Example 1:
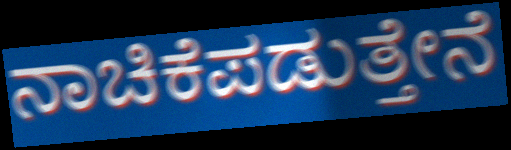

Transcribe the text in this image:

ನಾಚಿಕೆಪಡುತ್ತೇನೆ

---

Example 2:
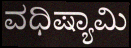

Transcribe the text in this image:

ವಧಿಷ್ಯಾಮಿ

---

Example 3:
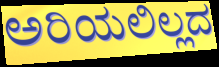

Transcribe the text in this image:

ಅರಿಯಲಿಲ್ಲದ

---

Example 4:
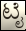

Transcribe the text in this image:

ಟೈ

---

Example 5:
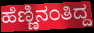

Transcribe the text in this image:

ಹೆಣ್ಣಿನಂತಿದ್ದ